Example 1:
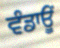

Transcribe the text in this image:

ਵੰਡਾਊਂ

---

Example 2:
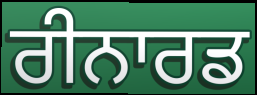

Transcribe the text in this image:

ਰੀਨਾਰਡ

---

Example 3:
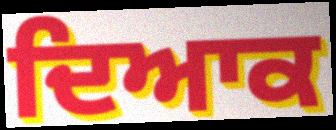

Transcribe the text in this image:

ਦਿਆਕ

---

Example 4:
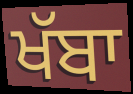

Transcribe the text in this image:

ਖੱਬਾ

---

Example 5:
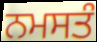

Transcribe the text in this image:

ਨਮਸਤੰ